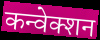
कन्वेक्शन